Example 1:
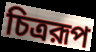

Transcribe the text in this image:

চিত্ররূপ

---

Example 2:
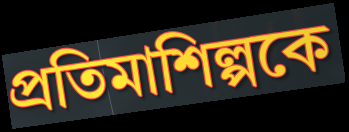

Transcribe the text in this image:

প্রতিমাশিল্পকে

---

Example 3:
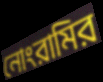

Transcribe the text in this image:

নোংরামির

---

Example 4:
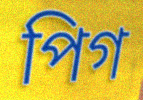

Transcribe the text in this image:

পিগ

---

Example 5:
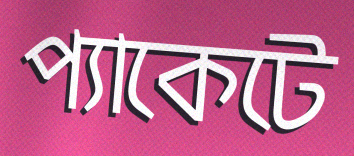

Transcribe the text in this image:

প্যাকেটে